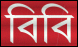
বিবি